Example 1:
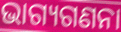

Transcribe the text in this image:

ଭାଗ୍ୟଗଣନା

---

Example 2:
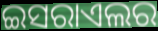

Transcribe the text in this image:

ଇସରାଏଲର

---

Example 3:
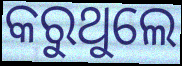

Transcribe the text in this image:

କରୁଥୁଲେ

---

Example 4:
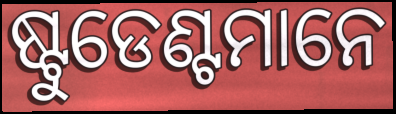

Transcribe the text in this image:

ଷ୍ଟୁଡେଣ୍ଟମାନେ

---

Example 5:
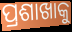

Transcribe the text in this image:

ପ୍ରଶାଖାକୁ